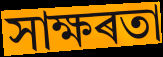
সাক্ষৰতা